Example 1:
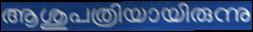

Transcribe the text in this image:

ആശുപത്രിയായിരുന്നു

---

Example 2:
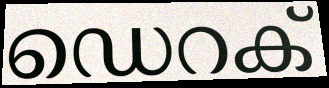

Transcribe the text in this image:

ഡെറക്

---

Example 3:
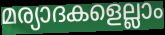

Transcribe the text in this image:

മര്യാദകളെല്ലാം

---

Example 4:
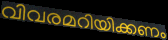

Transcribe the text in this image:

വിവരമറിയിക്കണം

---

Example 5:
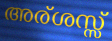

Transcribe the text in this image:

അര്ശസ്സ്